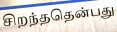
சிறந்ததென்பது